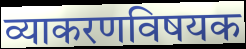
व्याकरणविषयक